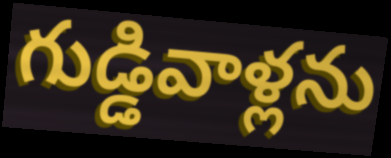
గుడ్డివాళ్లను